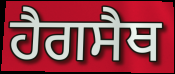
ਹੈਗਸੈਥ